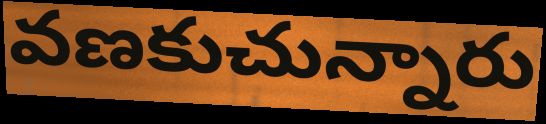
వణకుచున్నారు